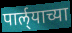
पार्ल्याच्या